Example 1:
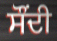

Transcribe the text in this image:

ਸੌਂਦੀ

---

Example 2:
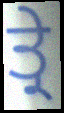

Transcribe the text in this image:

ਤ੍ਰੇ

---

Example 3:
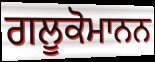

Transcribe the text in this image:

ਗਲੂਕੋਮਾਨਨ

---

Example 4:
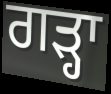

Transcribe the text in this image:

ਗੜ੍ਹਾ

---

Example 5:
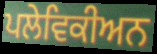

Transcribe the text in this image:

ਪਲੇਵਿਕੀਅਨ